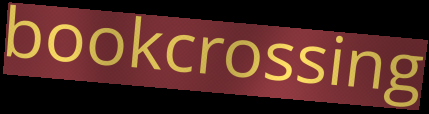
bookcrossing